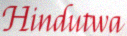
Hindutwa